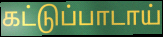
கட்டுப்பாடாய்